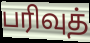
பரிவுத்